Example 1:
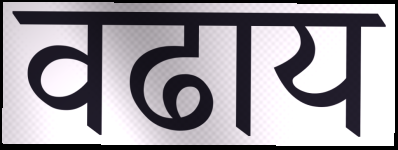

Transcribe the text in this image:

वढाय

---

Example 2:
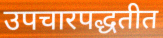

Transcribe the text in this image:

उपचारपद्धतीत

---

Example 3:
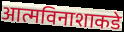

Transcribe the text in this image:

आत्मविनाशाकडे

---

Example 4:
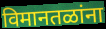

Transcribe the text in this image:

विमानतळांना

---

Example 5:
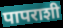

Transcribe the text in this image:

पापराशी